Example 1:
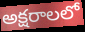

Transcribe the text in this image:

అక్షరాలలో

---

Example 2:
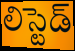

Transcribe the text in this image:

లిస్టెడ్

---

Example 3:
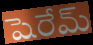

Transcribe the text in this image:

షెరేమ్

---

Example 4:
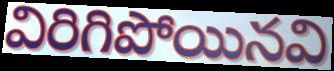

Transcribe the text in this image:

విరిగిపోయినవి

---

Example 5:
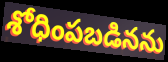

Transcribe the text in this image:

శోధింపబడినను